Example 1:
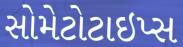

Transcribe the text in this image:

સોમેટોટાઇપ્સ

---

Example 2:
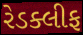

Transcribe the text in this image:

રેડક્લીફ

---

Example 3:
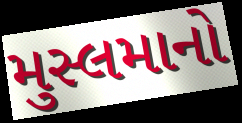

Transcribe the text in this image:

મુસ્લમાનો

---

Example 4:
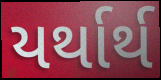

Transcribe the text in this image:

યર્થાર્થ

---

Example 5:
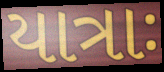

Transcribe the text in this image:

યાત્રાઃ